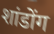
शांडोंग